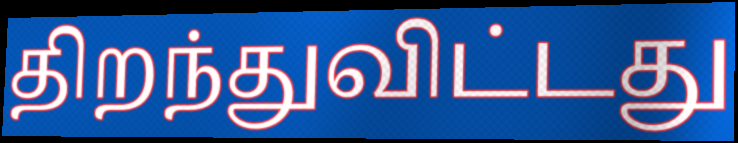
திறந்துவிட்டது